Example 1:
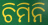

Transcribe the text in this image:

ଚିମିନି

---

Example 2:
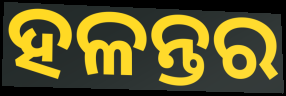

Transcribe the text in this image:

ହଳନ୍ତର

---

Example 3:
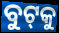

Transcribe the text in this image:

ବୁଟ୍‌କୁ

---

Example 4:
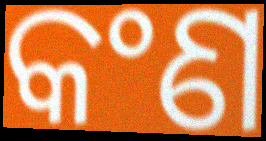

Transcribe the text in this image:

କଂଣ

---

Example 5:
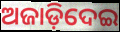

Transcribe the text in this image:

ଅଜାଡ଼ିଦେଇ